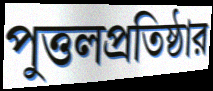
পুত্তলপ্রতিষ্ঠার